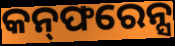
କନ୍‌ଫରେନ୍ସ